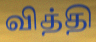
வித்தி